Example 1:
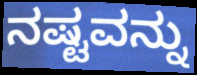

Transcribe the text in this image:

ನಷ್ಟವನ್ನು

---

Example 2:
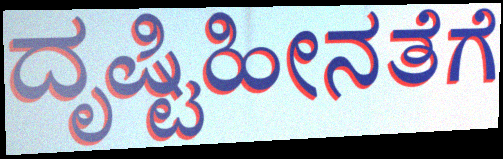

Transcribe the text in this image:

ದೃಷ್ಟಿಹೀನತೆಗೆ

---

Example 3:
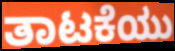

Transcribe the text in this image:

ತಾಟಕೆಯು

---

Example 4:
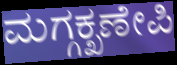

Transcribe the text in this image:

ಮಗ್ಗಕ್ಖಣೇಪಿ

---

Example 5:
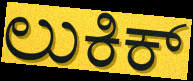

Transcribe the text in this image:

ಲುಕಿಕ್